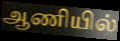
ஆணியில்